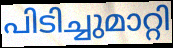
പിടിച്ചുമാറ്റി